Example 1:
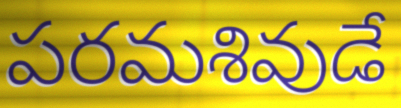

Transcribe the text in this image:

పరమశివుడే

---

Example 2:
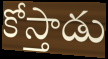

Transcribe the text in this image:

కోస్తాడు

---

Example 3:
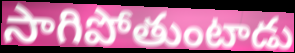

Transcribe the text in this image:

సాగిపోతుంటాడు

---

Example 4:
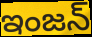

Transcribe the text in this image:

ఇంజన్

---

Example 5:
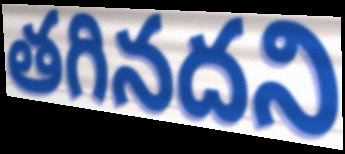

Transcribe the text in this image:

తగినదని